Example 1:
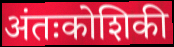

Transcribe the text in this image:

अंतःकोशिकी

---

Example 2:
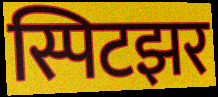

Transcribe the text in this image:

स्पिटझर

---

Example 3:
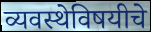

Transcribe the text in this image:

व्यवस्थेविषयीचे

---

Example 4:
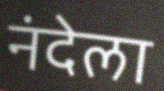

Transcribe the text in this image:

नंदेला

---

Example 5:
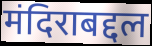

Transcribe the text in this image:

मंदिराबद्दल